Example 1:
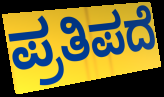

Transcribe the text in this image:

ಪ್ರತಿಪದೆ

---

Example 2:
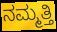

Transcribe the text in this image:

ನಮ್ಮತ್ತಿ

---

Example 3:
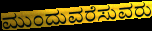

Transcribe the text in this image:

ಮುಂದುವರೆಸುವರು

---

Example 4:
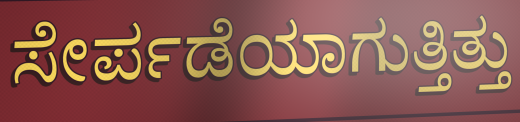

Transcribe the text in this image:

ಸೇರ್ಪಡೆಯಾಗುತ್ತಿತ್ತು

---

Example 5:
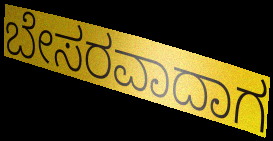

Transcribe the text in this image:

ಬೇಸರವಾದಾಗ